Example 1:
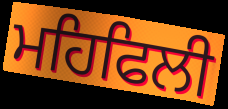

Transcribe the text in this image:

ਮਹਿਫਿਲੀ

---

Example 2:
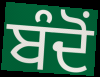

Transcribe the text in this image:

ਬੰਦੋਂ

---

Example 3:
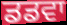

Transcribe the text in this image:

ਡਡਵਾ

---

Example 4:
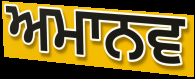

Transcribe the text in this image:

ਅਮਾਨਵ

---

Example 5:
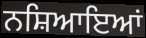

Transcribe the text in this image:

ਨਸ਼ਿਆਇਆਂ